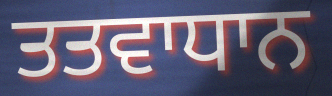
ਤਤਵਾਧਾਨ